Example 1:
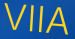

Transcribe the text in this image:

VIIA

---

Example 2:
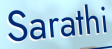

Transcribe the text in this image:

Sarathi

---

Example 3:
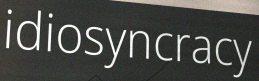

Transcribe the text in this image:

idiosyncracy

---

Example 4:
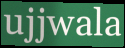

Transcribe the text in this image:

ujjwala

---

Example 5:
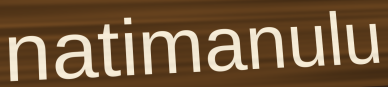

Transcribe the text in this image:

natimanulu